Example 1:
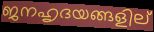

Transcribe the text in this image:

ജനഹൃദയങ്ങളില്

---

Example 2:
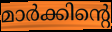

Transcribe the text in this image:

മാർക്കിന്റെ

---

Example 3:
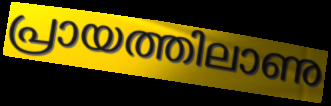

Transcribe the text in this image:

പ്രായത്തിലാണു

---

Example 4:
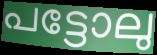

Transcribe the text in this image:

പട്ടോലു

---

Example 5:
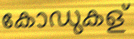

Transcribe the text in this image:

കോഡുകള്